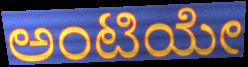
ಅಂಟಿಯೇ